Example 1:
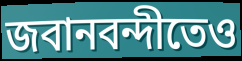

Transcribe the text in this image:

জবানবন্দীতেও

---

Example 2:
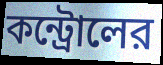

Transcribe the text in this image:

কন্ট্রোলের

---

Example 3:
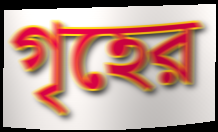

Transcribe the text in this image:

গৃহের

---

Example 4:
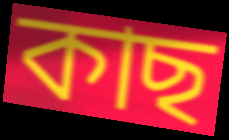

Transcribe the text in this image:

কাছ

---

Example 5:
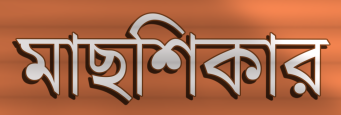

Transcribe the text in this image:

মাছশিকার